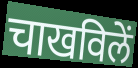
चाखविलें